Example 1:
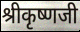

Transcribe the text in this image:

श्रीकृष्णजी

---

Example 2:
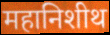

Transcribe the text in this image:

महानिशीथ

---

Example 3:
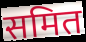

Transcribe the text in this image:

समित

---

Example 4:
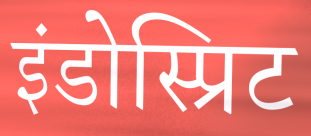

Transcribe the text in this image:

इंडोस्प्रिट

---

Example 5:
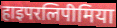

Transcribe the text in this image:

हाइपरलिपीमिया